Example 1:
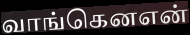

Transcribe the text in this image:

வாங்கெனஎன்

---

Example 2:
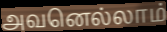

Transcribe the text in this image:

அவனெல்லாம்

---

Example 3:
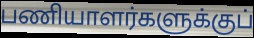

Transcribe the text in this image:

பணியாளர்களுக்குப்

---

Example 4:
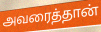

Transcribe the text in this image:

அவரைத்தான்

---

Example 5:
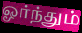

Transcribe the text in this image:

ஓர்ந்தும்